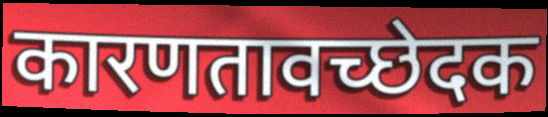
कारणतावच्छेदक